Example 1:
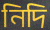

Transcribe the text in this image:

নিদি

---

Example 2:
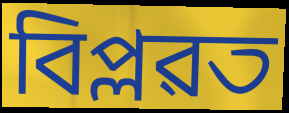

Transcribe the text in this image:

বিপ্লৱত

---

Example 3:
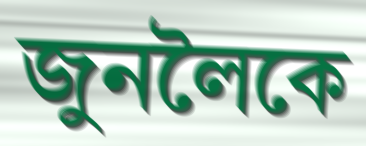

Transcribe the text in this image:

জুনলৈকে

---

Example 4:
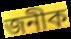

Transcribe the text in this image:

জনীক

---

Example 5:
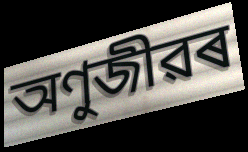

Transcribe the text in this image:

অণুজীৱৰ